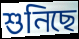
শুনিছে